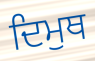
ਦਿਮੁਥ